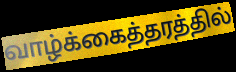
வாழ்க்கைத்தரத்தில்